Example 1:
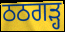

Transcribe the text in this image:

ਠਠਗੜ੍ਹ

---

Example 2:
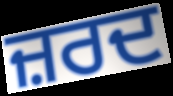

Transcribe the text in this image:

ਜ਼ਰਦ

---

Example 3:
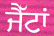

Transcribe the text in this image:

ਜੈੱਟਾਂ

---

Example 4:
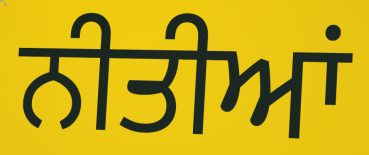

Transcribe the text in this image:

ਨੀਤੀਆਂ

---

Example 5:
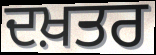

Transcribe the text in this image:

ਦਖ਼ਤਰ